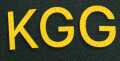
KGG